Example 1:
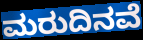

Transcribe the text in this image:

ಮರುದಿನವೆ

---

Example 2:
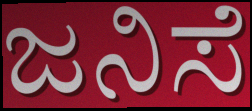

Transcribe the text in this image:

ಜನಿಸೆ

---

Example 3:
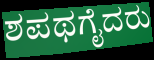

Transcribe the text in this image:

ಶಪಥಗೈದರು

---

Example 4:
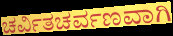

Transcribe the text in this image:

ಚರ್ವಿತಚರ್ವಣವಾಗಿ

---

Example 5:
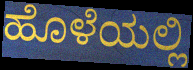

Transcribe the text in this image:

ಹೊಳೆಯಲ್ಲಿ